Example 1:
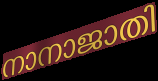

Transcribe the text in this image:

നാനാജാതി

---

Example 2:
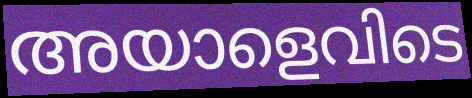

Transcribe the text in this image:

അയാളെവിടെ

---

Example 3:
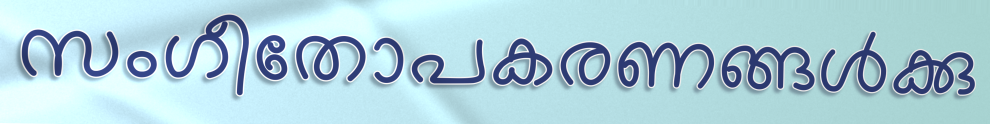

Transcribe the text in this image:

സംഗീതോപകരണങ്ങൾക്കു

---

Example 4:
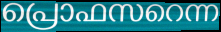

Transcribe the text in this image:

പ്രൊഫസറെന്ന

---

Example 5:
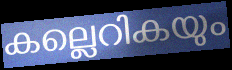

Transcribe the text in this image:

കല്ലെറികയും